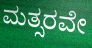
ಮತ್ಸರವೇ